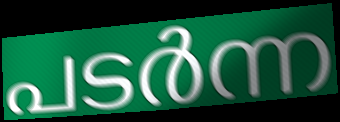
പടർന്ന